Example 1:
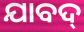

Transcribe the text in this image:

ଯାବଦ୍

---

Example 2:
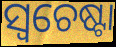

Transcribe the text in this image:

ସ୍ଵଚେଷ୍ଟା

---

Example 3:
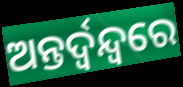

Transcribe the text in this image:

ଅନ୍ତର୍ଦ୍ୱନ୍ଦ୍ୱରେ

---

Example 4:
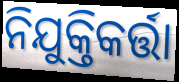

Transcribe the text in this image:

ନିଯୁକ୍ତିକର୍ତ୍ତା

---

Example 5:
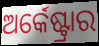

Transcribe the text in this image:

ଅର୍କେଷ୍ଟ୍ରାର